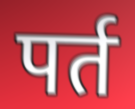
पर्त